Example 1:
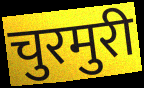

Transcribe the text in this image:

चुरमुरी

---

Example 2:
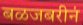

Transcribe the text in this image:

बळजबरीनं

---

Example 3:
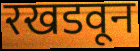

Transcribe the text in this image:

रखडवून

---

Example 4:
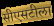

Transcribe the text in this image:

सीएसटीला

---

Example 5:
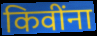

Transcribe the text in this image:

किवींना